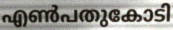
എൺപതുകോടി